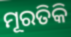
ମୂରତିକି